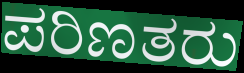
ಪರಿಣತರು